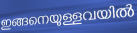
ഇങ്ങനെയുള്ളവയിൽ